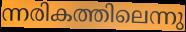
ന്നരികത്തിലെന്നു